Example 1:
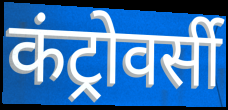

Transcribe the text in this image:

कंट्रोवर्सी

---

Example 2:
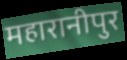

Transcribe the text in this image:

महारानीपुर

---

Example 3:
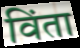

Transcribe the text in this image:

विंता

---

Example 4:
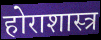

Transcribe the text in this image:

होराशास्त्र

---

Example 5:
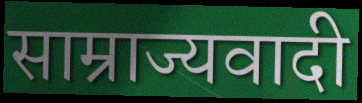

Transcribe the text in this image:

साम्राज्यवादी